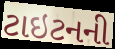
ટાઇટનની